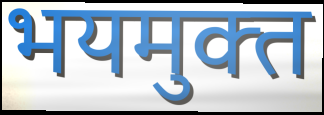
भयमुक्‍त